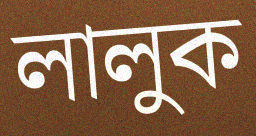
লালুক